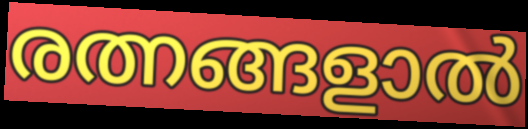
രത്നങ്ങളാൽ